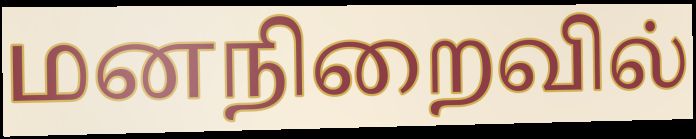
மனநிறைவில்